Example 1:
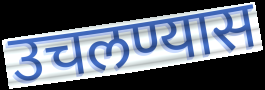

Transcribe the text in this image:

उचलण्यास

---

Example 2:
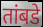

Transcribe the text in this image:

तांबडे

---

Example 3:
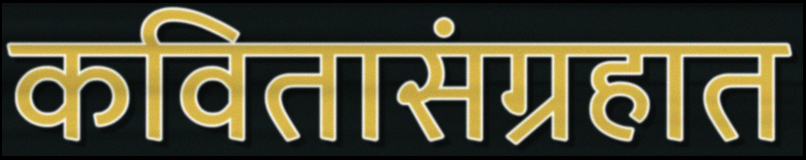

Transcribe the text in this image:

कवितासंग्रहात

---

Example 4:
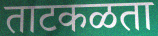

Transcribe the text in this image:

ताटकळता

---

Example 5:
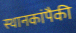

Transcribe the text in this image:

स्थानकांपैकी